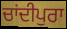
ਚਾਂਦੀਪੁਰਾ